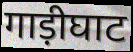
गाड़ीघाट